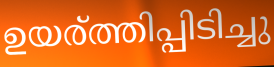
ഉയര്ത്തിപ്പിടിച്ചു